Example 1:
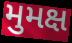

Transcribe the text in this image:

મુમક્ષ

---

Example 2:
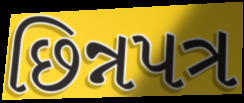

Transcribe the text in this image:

છિન્નપત્ર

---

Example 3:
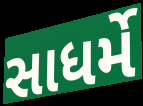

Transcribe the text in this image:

સાધર્મે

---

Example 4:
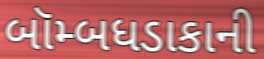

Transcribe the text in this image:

બૉમ્બધડાકાની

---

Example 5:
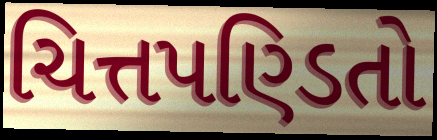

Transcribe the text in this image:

ચિત્તપણ્ડિતો